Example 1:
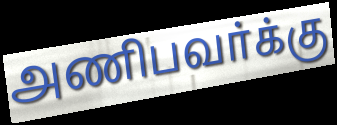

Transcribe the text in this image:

அணிபவர்க்கு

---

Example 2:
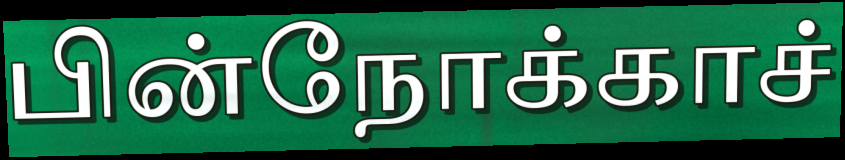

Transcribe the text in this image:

பின்நோக்காச்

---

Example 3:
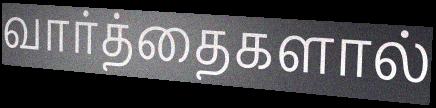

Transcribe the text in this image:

வார்த்தைகளால்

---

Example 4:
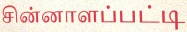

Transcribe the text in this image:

சின்னாளப்பட்டி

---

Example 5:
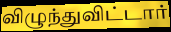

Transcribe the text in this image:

விழுந்துவிட்டார்